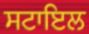
ਸਟਾਇਲ